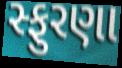
સ્ફુરણા